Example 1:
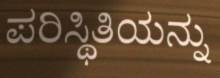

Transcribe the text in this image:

ಪರಿಸ್ಥಿತಿಯನ್ನು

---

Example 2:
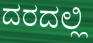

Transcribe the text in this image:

ದರದಲ್ಲಿ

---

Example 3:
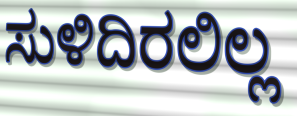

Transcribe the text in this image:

ಸುಳಿದಿರಲಿಲ್ಲ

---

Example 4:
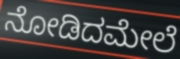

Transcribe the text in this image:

ನೋಡಿದಮೇಲೆ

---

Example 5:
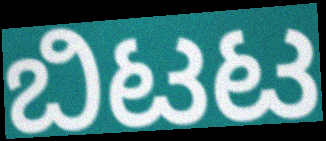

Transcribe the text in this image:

ಬಿಟಟ